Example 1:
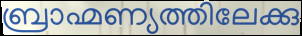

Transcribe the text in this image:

ബ്രാഹ്മണ്യത്തിലേക്കു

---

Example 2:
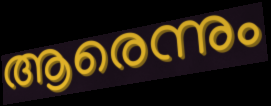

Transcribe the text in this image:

ആരെന്നും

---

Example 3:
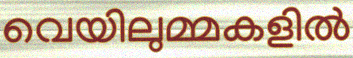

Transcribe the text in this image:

വെയിലുമ്മകളിൽ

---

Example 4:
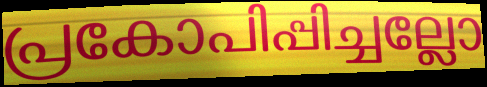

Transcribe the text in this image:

പ്രകോപിപ്പിച്ചല്ലോ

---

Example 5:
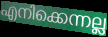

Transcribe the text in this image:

എനിക്കെന്നല്ല